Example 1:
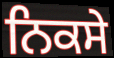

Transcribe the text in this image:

ਨਿਕਸੇ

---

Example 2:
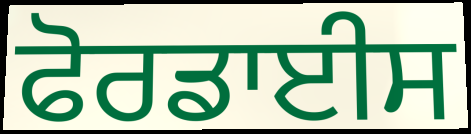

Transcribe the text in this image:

ਫੋਰਡਾਈਸ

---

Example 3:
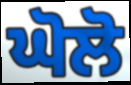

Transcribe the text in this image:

ਘੋਲੋ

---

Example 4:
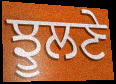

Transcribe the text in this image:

ਝੂਲਣੇ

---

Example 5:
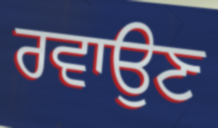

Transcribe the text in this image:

ਰਵਾਉਣ